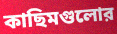
কাছিমগুলোর